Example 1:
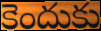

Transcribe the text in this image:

కెందుకు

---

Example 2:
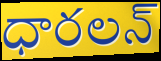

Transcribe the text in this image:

ధారలన్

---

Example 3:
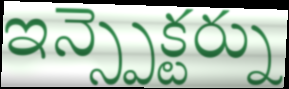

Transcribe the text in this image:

ఇన్స్పెక్టర్ను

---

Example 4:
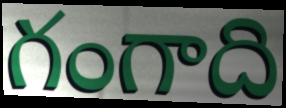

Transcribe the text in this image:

గంగాది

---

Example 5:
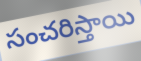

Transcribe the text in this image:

సంచరిస్తాయి